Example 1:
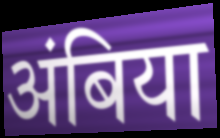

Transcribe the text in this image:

अंबिया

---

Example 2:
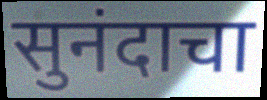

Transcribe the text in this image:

सुनंदाचा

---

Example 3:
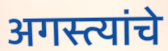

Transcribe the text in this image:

अगस्त्यांचे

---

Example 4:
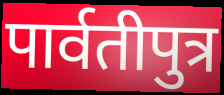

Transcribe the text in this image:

पार्वतीपुत्र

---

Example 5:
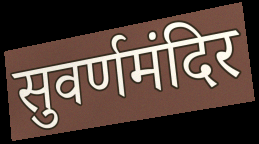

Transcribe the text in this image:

सुवर्णमंदिर